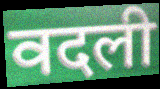
वदली